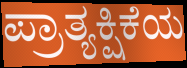
ಪ್ರಾತ್ಯಕ್ಷಿಕೆಯ